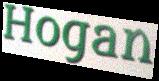
Hogan